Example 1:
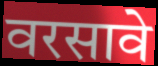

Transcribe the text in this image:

वरसावे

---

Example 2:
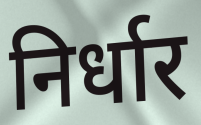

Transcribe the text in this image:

निर्धार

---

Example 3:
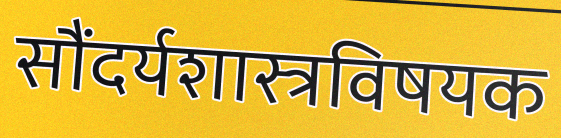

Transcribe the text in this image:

सौंदर्यशास्त्रविषयक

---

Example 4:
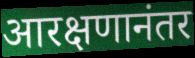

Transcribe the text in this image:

आरक्षणानंतर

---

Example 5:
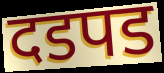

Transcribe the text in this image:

दडपड